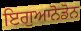
ਇਗੁਆਨੋਡੋਨ